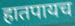
हातपायच